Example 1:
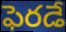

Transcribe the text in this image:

ఫెరడే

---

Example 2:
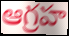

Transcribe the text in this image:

ఆగ్రహ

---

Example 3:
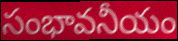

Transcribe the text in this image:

సంభావనీయం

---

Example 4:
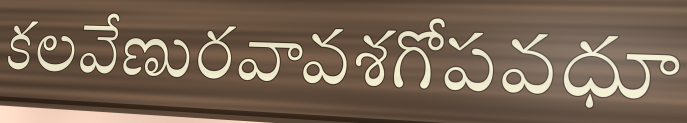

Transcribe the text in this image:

కలవేణురవావశగోపవధూ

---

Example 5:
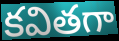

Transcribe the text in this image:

కవితగా